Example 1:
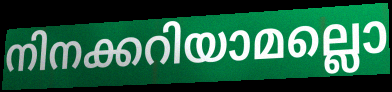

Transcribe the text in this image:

നിനക്കറിയാമല്ലൊ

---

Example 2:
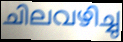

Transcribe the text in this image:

ചിലവഴിച്ചു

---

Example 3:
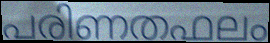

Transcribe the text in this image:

പരിണതഫലം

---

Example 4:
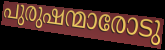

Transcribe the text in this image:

പുരുഷന്മാരോടു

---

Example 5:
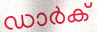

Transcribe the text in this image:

ഡാർക്